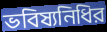
ভবিষ্যনিধির